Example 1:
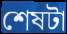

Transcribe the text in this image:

শেষটা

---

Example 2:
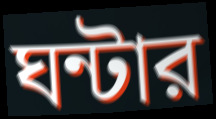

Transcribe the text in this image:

ঘন্টার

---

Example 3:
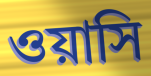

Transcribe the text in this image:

ওয়াসি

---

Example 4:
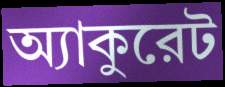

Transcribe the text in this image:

অ্যাকুরেট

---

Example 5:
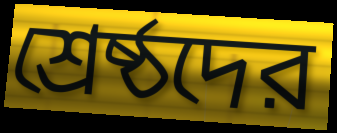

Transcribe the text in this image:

শ্রেষ্ঠদের